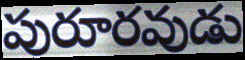
పురూరవుడు